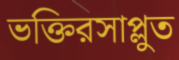
ভক্তিরসাপ্লুত